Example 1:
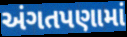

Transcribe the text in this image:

અંગતપણામાં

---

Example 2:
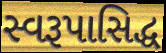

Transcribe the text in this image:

સ્વરૂપાસિદ્ધ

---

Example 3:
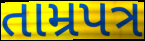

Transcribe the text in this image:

તામ્રપત્ર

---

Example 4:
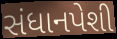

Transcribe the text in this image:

સંધાનપેશી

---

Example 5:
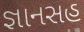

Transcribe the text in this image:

જ્ઞાનસહ